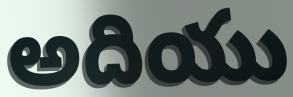
అదియు